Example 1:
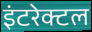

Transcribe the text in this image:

इंटरेक्टल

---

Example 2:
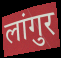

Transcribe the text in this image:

लांगुर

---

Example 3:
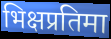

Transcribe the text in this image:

भिक्षप्रतिमा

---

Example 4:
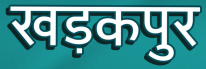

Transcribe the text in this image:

खड़कपुर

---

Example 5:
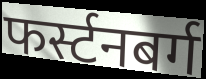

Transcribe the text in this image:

फर्स्टनबर्ग